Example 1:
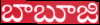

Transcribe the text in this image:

బాబూజి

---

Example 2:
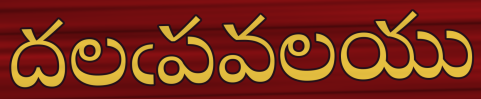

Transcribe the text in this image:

దలఁపవలయు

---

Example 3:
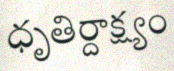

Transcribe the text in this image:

ధృతిర్దాక్ష్యం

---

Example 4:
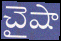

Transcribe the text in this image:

చైషా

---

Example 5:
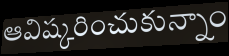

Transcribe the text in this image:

ఆవిష్కరించుకున్నాం